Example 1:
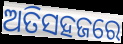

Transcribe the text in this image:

ଅତିସହଜରେ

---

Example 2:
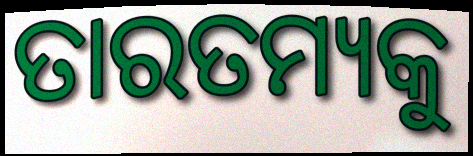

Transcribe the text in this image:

ତାରତମ୍ୟକୁ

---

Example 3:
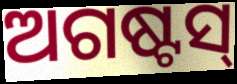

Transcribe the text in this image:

ଅଗଷ୍ଟସ୍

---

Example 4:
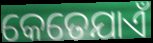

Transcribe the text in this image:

କେତେଯାଏଁ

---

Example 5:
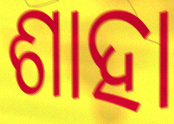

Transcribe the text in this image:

ଶାହା